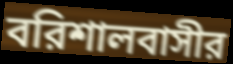
বরিশালবাসীর